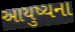
આયુષ્યના